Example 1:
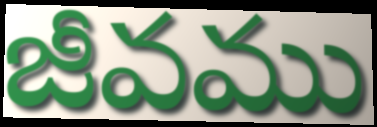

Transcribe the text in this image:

జీవము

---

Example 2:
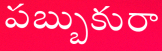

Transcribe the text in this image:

పబ్బుకురా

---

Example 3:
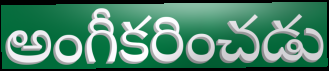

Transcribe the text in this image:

అంగీకరించడు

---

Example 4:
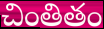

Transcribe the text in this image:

చింతితం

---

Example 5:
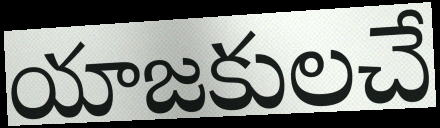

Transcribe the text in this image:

యాజకులచే